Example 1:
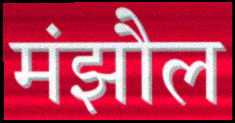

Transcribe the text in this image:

मंझौल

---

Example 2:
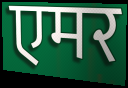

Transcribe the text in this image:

एमर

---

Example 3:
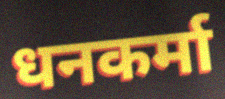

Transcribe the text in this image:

धनकर्मा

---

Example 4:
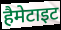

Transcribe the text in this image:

हैमेटाइट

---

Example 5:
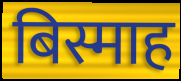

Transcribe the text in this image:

बिस्माह